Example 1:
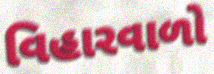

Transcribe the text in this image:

વિહારવાળો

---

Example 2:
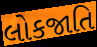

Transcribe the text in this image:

લોકજાતિ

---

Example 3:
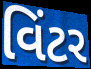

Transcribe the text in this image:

વિંટર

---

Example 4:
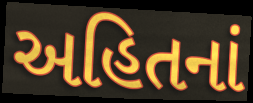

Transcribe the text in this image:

અહિતનાં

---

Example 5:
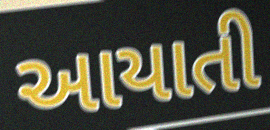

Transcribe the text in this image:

આયાતી